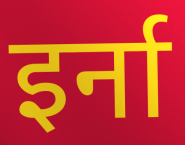
इर्ना